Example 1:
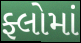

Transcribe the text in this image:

ફ્લોમાં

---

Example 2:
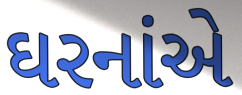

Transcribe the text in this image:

ઘરનાંએ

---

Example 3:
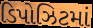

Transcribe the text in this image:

ડિપોઝિટમાં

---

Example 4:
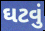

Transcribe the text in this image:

ઘટવું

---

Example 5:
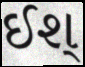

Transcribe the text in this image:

ઈશ્